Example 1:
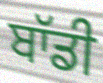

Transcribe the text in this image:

ਬਾੱਡੀ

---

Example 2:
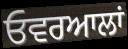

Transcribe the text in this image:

ਓਵਰਆਲਾਂ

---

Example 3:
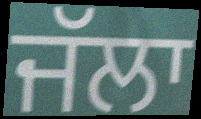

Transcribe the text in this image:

ਜੱਲਾ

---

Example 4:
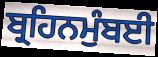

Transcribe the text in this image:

ਬ੍ਰਹਿਨਮੁੰਬਈ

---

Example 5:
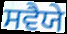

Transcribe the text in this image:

ਸਵੈਯੇ